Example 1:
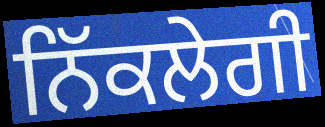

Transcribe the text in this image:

ਨਿੱਕਲੇਗੀ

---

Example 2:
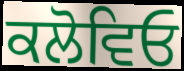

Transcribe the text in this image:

ਕਲੋਵਿਓ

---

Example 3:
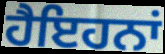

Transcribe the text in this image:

ਹੈਇਹਨਾਂ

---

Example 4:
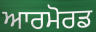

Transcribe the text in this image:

ਆਰਮੋਰਡ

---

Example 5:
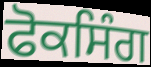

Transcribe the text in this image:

ਫੋਕਸਿੰਗ